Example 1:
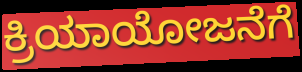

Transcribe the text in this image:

ಕ್ರಿಯಾಯೋಜನೆಗೆ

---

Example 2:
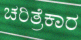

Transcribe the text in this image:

ಚರಿತ್ರೆಕಾರ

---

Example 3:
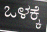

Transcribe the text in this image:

ಒಳಕ್ಕೆ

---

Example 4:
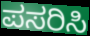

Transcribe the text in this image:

ಪಸರಿಸಿ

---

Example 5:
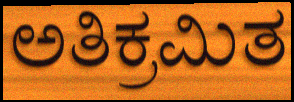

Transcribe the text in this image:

ಅತಿಕ್ರಮಿತ